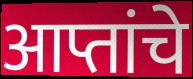
आप्तांचे